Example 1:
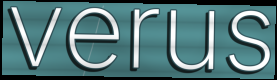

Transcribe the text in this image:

verus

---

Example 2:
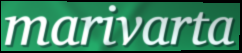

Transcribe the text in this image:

marivarta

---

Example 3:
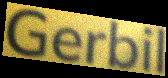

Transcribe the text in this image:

Gerbil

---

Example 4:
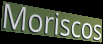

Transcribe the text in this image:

Moriscos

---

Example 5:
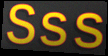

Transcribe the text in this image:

Sss